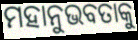
ମହାନୁଭବତାକୁ